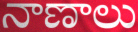
నాణాలు